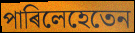
পাৰিলেহেতেন